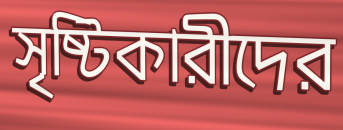
সৃষ্টিকারীদের